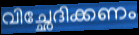
വിച്ഛേദിക്കണം